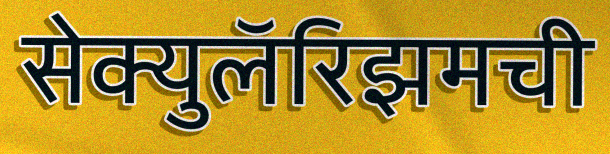
सेक्युलॅरिझमची